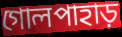
গোলপাহাড়